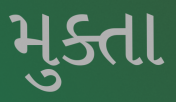
મુક્તા